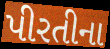
પીરતીના